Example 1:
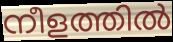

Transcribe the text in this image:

നീളത്തിൽ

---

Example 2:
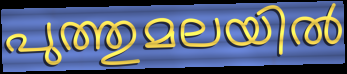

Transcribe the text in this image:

പുത്തുമലയിൽ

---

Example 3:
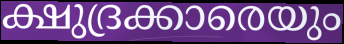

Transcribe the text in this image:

ക്ഷുദ്രക്കാരെയും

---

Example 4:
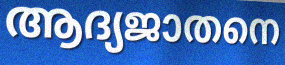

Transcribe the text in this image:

ആദ്യജാതനെ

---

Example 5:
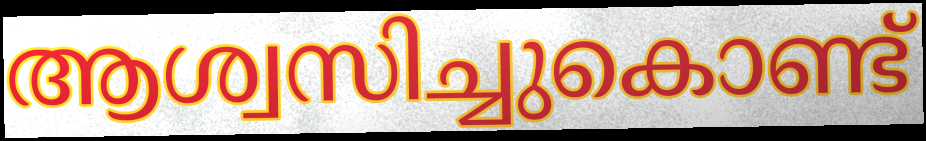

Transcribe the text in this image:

ആശ്വസിച്ചുകൊണ്ട്